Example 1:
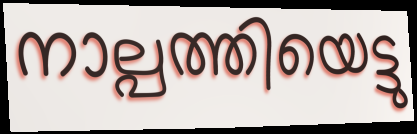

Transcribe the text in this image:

നാല്പത്തിയെട്ടു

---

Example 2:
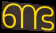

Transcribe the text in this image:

ണ്ട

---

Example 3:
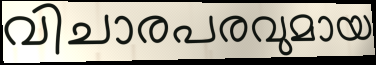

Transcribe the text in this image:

വിചാരപരവുമായ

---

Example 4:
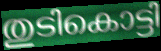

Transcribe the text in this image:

തുടികൊട്ടി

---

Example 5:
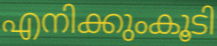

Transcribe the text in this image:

എനിക്കുംകൂടി